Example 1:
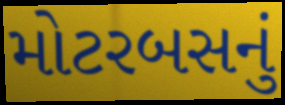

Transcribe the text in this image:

મોટરબસનું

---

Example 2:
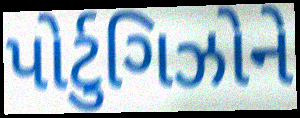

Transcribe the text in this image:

પોર્ટુગિઝોને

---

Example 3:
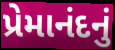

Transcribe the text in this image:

પ્રેમાનંદનું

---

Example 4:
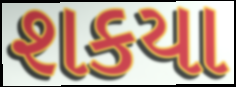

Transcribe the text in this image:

શકયા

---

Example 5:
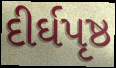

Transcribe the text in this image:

દીર્ઘપૃષ્ઠ